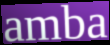
amba